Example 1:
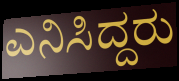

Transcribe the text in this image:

ಎನಿಸಿದ್ದರು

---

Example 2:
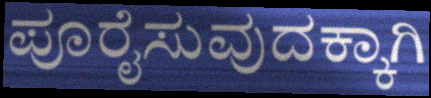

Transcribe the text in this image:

ಪೂರೈಸುವುದಕ್ಕಾಗಿ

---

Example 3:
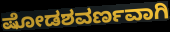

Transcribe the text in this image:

ಷೋಡಶವರ್ಣವಾಗಿ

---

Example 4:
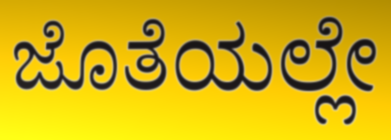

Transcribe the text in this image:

ಜೊತೆಯಲ್ಲೇ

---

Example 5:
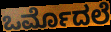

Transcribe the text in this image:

ಒರ್ಮೊದಲೆ